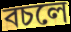
বচলে